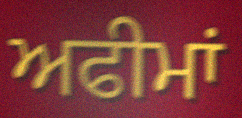
ਅਫੀਮਾਂ